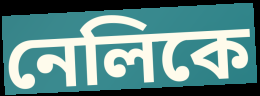
নেলিকে